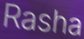
Rasha